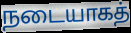
நடையாகத்